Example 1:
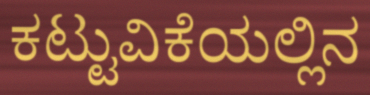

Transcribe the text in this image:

ಕಟ್ಟುವಿಕೆಯಲ್ಲಿನ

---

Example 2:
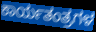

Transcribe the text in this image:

ಕಾರ್ಯತಂತ್ರಗಳ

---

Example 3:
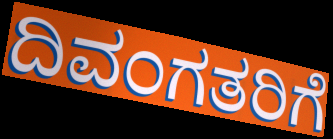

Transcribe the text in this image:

ದಿವಂಗತರಿಗೆ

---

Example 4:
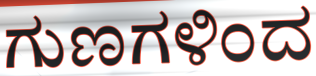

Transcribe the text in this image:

ಗುಣಗಳಿಂದ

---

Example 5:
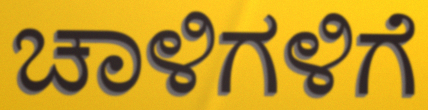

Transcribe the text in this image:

ಚಾಳಿಗಳಿಗೆ